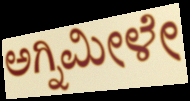
ಅಗ್ನಿಮೀಳೇ